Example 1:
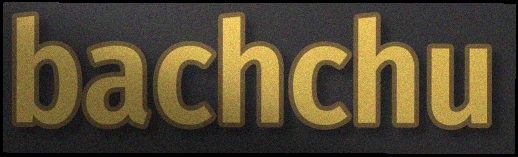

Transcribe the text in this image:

bachchu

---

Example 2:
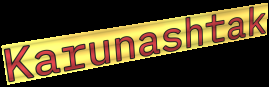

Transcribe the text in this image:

Karunashtak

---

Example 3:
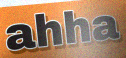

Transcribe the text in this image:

ahha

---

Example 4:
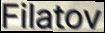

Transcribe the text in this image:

Filatov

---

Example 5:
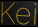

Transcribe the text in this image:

Kei